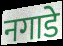
नगाडे